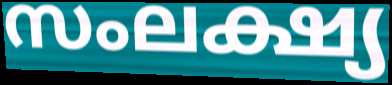
സംലക്ഷ്യ